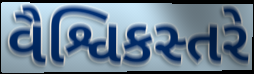
વૈશ્વિકસ્તરે